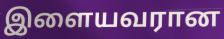
இளையவரான